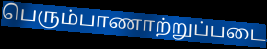
பெரும்பாணாற்றுப்படை